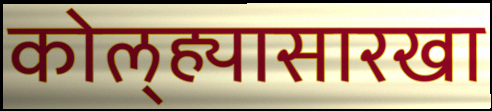
कोल्ह्यासारखा